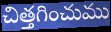
చిత్తగించుము